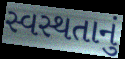
સ્વસ્થતાનું